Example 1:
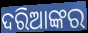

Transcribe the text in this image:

ଦରିଆଙ୍କର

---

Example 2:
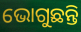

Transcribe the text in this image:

ଭୋଗୁଛନ୍ତି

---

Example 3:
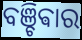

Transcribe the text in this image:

ବଞ୍ଚିଵାର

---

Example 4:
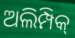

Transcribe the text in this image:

ଅଲିମ୍ପିକ୍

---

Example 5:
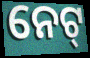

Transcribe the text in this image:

ନେଟ୍